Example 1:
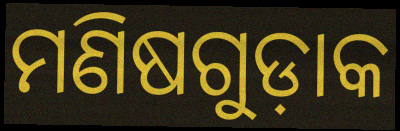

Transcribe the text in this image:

ମଣିଷଗୁଡ଼ାକ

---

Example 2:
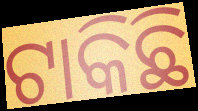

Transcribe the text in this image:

ଟାକିଛି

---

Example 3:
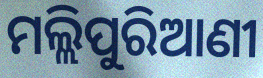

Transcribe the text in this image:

ମଲ୍ଲିପୁରିଆଣୀ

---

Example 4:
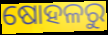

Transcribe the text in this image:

ଷୋହଳରୁ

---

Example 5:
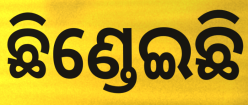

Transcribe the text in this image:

ଛିଣ୍ଡେଇଛି